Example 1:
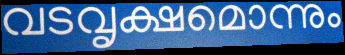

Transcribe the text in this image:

വടവൃക്ഷമൊന്നും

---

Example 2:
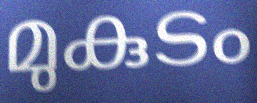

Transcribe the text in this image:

മുകുടം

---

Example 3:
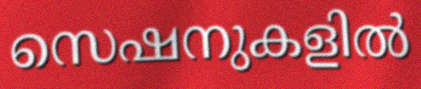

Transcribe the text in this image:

സെഷനുകളിൽ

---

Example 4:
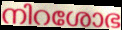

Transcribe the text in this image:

നിറശോഭ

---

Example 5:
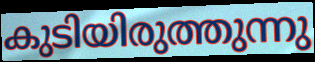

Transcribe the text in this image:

കുടിയിരുത്തുന്നു